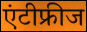
एंटीफ्रीज